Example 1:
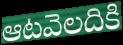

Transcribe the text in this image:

ఆటవెలదికి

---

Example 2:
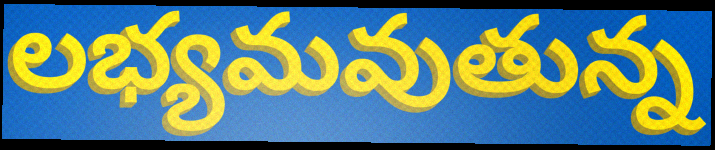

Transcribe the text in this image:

లభ్యమవుతున్న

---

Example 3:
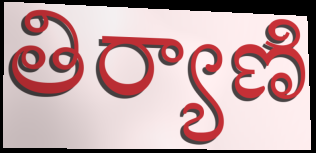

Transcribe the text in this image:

తిర్యాణి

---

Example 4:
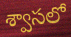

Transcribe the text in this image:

శ్వాసలో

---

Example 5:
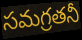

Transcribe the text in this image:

సమగ్రతనీ